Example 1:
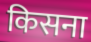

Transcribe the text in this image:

किसना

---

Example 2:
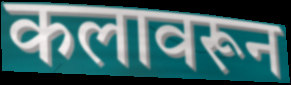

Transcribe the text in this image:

कलावरून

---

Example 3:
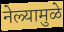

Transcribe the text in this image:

नेल्यामुळे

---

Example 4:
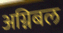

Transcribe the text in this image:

अग्निबल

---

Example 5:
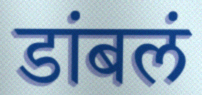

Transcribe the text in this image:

डांबलं